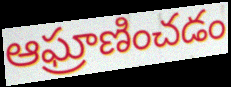
ఆఘ్రాణించడం